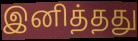
இனித்தது